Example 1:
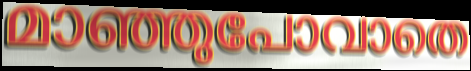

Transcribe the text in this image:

മാഞ്ഞുപോവാതെ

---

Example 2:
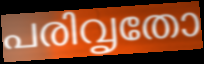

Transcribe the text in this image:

പരിവൃതോ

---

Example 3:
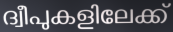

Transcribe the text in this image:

ദ്വീപുകളിലേക്ക്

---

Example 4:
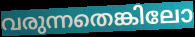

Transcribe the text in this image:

വരുന്നതെങ്കിലോ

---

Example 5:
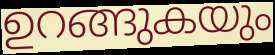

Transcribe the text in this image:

ഉറങ്ങുകയും